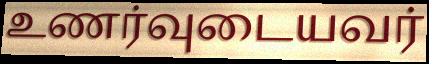
உணர்வுடையவர்